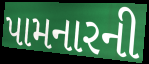
પામનારની